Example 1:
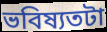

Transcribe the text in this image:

ভবিষ্যতটা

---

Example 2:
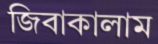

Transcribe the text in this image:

জিবাকালাম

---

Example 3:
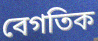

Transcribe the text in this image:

বেগতিক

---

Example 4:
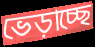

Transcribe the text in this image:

ভেড়াচ্ছে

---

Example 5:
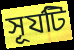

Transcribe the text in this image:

সূর্যটি